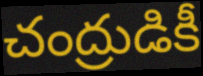
చంద్రుడికీ